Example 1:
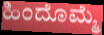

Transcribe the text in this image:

ಹಿಂದೊಮ್ಮೆ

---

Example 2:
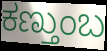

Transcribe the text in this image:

ಕಣ್ತುಂಬ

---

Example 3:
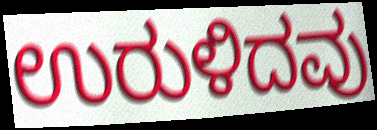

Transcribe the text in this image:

ಉರುಳಿದವು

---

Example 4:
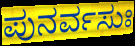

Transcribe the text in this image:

ಪುನರ್ವಸುಃ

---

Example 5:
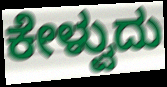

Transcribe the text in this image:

ಕೇಳ್ವುದು